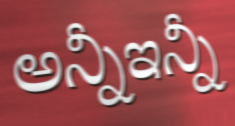
అన్నీఇన్నీ